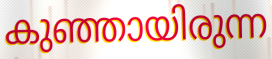
കുഞ്ഞായിരുന്ന